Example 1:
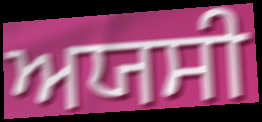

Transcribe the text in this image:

ਅਯਸੀ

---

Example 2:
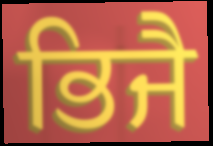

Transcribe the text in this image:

ਭਿਜੈ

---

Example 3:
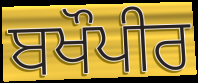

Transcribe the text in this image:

ਬਖੌਪੀਰ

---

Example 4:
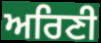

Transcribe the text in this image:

ਅਰਿਣੀ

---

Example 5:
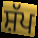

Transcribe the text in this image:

ਸ਼ੱਪ